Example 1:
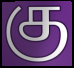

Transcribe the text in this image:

கு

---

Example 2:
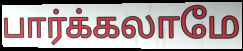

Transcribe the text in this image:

பார்க்கலாமே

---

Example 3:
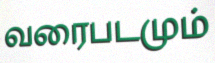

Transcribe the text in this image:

வரைபடமும்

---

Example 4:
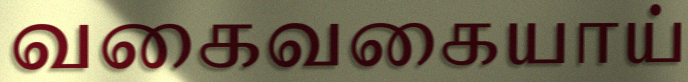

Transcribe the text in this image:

வகைவகையாய்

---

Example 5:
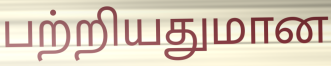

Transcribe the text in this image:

பற்றியதுமான